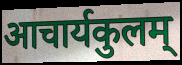
आचार्यकुलम्